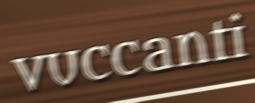
vuccanti